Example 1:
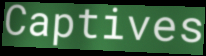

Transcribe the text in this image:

Captives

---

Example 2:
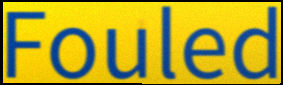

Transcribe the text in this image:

Fouled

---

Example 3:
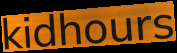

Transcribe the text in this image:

kidhours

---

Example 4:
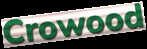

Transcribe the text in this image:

Crowood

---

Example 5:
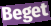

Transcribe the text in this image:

Beget